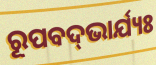
ରୂପବଦ୍‌ଭାର୍ଯ୍ୟଃ